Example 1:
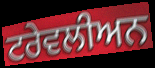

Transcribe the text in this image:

ਟਰੇਵਲੀਅਨ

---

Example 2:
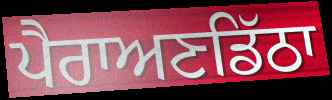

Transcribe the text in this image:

ਪੈਰਾਅਣਡਿੱਠਾ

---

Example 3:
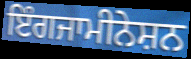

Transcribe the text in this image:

ਇੰਗਜਾਮੀਨੇਸ਼ਨ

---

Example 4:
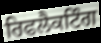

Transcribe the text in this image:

ਰਿਫਲੈਕਟਿੰਗ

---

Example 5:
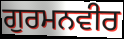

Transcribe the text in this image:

ਗੁਰਮਨਵੀਰ